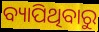
ବ୍ୟାପିଥିବାରୁ